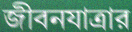
জীবনযাত্রার